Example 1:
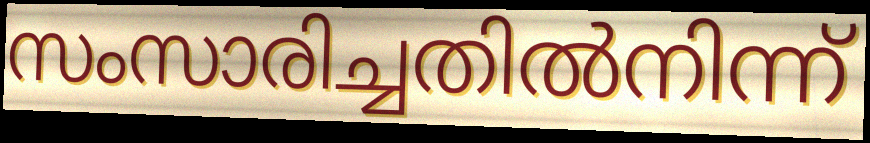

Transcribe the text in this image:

സംസാരിച്ചതിൽനിന്ന്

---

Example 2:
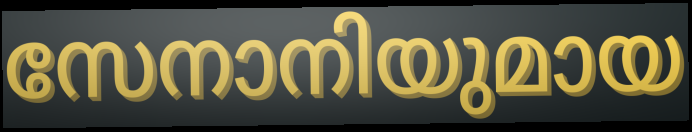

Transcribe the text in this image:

സേനാനിയുമായ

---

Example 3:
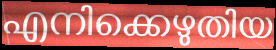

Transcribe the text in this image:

എനിക്കെഴുതിയ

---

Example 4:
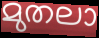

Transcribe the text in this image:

മുതലാ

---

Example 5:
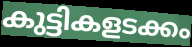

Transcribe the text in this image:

കുട്ടികളടക്കം